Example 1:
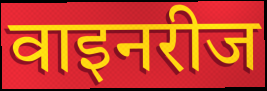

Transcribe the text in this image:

वाइनरीज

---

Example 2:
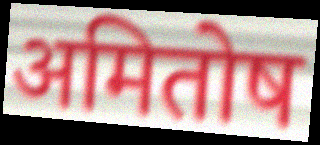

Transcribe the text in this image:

अमितोष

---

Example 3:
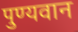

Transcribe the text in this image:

पुण्यवान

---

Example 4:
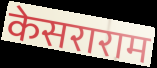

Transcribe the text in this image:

केसराराम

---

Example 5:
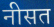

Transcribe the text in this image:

नीसत